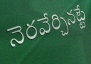
నెరవేర్చినట్టే